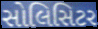
સોલિસિટર